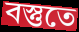
বস্তুতে